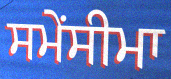
ਸਮੇਂਸੀਮਾ